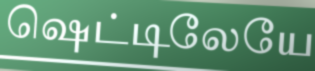
ஷெட்டிலேயே